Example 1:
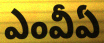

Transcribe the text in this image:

ఎంవీఏ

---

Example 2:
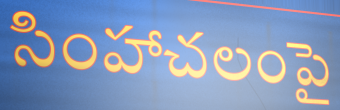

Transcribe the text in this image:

సింహాచలంపై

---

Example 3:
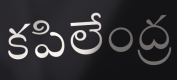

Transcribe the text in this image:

కపిలేంద్ర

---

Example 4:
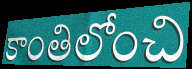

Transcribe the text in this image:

కాంతిలోంచి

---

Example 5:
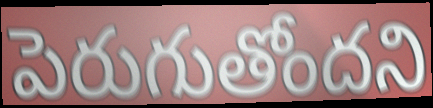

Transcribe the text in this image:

పెరుగుతోందని